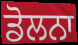
ਡੋਲਨਾ